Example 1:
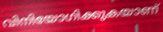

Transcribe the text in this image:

വിനിയോഗിക്കുകയാണ്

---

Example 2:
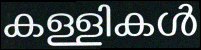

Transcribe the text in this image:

കള്ളികൾ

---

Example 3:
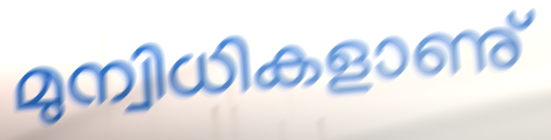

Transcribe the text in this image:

മുന്വിധികളാണു്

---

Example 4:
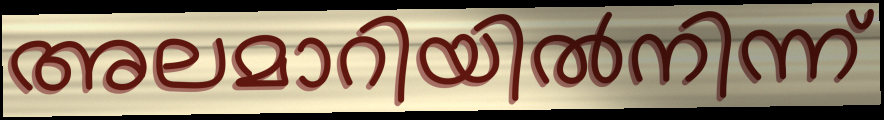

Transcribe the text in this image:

അലമാറിയിൽനിന്ന്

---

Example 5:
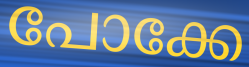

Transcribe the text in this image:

പോക്കേ